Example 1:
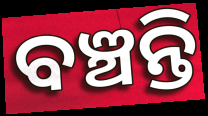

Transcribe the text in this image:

ବଞ୍ଚନ୍ତି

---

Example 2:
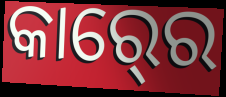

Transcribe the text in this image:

କାର୍‍ରେ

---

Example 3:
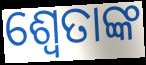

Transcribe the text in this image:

ଶ୍ଵେତାଙ୍କ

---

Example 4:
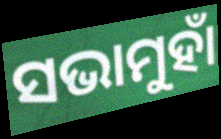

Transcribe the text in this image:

ସଭାମୁହାଁ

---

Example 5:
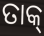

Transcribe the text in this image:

ତାକ୍